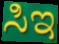
ಸಿಇ